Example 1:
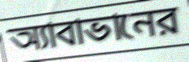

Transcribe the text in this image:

অ্যাবাভানের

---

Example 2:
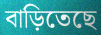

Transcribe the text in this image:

বাড়িতেছে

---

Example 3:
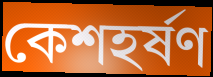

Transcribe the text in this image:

কেশহর্ষণ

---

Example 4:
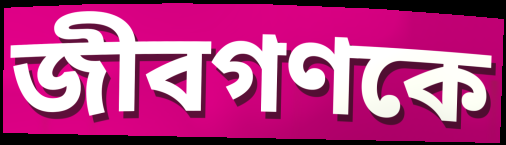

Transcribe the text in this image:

জীবগণকে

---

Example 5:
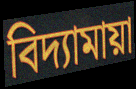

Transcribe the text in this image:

বিদ্যামায়া